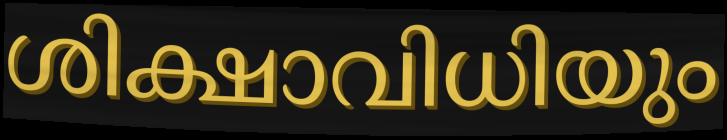
ശിക്ഷാവിധിയും